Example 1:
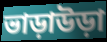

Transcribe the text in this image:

ভাড়াউড়া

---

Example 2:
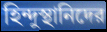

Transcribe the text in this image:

হিন্দুস্থানিদের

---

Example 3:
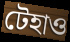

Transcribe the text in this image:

টেহাও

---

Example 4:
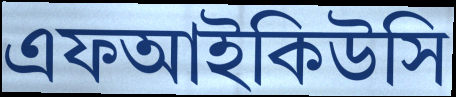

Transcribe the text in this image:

এফআইকিউসি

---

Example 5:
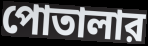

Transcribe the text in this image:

পোতালার